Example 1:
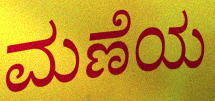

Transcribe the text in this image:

ಮಣೆಯ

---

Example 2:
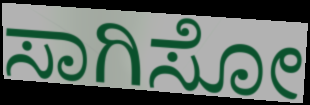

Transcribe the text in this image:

ಸಾಗಿಸೋ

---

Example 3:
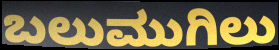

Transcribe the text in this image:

ಬಲುಮುಗಿಲು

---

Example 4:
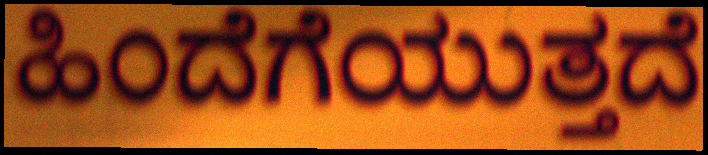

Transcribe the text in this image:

ಹಿಂದೆಗೆಯುತ್ತದೆ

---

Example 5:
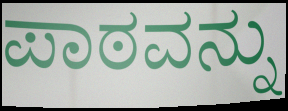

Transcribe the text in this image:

ಪಾಠವನ್ನು